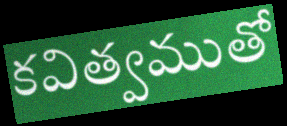
కవిత్వముతో